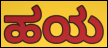
ಹಯ